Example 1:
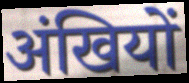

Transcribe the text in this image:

अंखियों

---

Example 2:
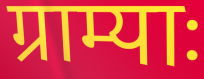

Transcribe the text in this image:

ग्राम्याः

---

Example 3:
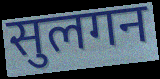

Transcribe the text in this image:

सुलगन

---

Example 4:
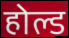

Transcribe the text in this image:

होल्ड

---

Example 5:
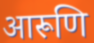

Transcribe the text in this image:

आरूणि